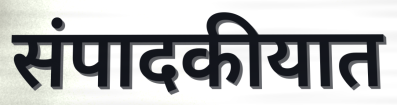
संपादकीयात